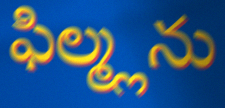
ఫిల్మ్లను